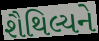
શૈથિલ્યને